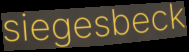
siegesbeck